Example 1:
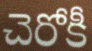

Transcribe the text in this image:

చెరోకీ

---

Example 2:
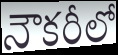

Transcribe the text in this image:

నౌకరీలో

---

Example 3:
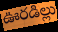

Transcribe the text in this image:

ఊరడిల్లు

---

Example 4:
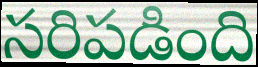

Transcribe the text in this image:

సరిపడింది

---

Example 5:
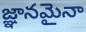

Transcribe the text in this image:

జ్ఞానమైనా